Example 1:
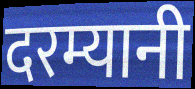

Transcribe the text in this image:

दरम्यानी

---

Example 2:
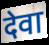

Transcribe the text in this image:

देवा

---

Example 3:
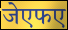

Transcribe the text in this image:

जेएफए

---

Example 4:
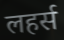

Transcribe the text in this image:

लहर्स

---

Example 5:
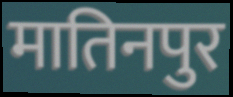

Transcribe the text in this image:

मातिनपुर